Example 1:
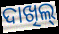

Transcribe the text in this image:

ଦାଖିଲ୍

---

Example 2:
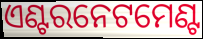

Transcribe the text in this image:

ଏଣ୍ଟରନେଟମେଣ୍ଟ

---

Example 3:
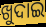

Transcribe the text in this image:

ଖୁଦାଇ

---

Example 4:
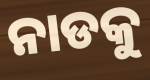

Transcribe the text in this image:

ନାଡକୁ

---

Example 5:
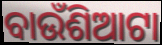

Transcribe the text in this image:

ବାଉଁଶିଆଟା